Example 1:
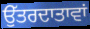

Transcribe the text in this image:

ਉੱਤਰਦਾਤਾਵਾਂ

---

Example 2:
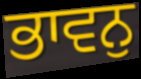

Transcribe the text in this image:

ਭਾਵਨੁ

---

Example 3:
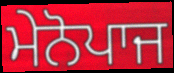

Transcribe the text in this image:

ਮੇਨੋਪਾਜ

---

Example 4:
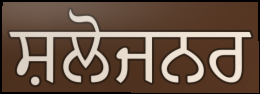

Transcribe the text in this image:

ਸ਼ਲੋਜਨਰ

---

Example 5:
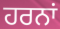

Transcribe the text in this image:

ਹਰਨਾਂ